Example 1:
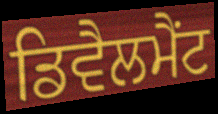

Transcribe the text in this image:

ਡਿਵੈਲਮੈਂਟ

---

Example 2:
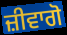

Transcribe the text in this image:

ਜ਼ੀਵਾਗੋ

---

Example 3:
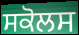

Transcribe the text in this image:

ਸਕੋਲਸ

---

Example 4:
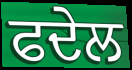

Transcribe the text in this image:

ਫਦੇਲ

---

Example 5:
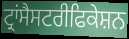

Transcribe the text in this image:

ਟ੍ਰਾਂਸੈਸਟਰੀਫਿਕੇਸ਼ਨ